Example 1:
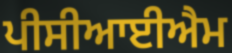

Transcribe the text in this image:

ਪੀਸੀਆਈਐਮ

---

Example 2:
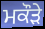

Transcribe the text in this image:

ਮਕੌੜੇ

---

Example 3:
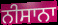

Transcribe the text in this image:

ਨੀਸਾਨਾ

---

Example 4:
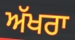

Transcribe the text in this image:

ਅੱਖਰਾ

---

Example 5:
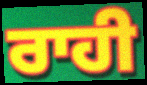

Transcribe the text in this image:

ਰਾਹੀ